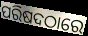
ପରିଷଦଠାରେ